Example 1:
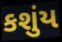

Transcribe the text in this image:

કશુંય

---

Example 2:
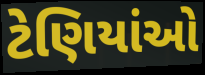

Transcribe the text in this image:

ટેણિયાંઓ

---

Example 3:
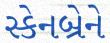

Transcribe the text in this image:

સ્કેનબ્રેને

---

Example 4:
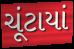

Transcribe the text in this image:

ચૂંટાયાં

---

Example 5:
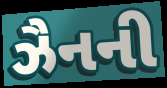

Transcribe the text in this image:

ઝૈનની